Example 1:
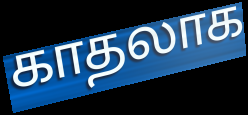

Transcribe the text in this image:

காதலாக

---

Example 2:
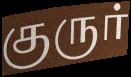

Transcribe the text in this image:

குருர்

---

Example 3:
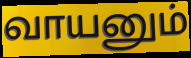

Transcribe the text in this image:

வாயனும்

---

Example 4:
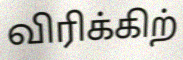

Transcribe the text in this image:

விரிக்கிற்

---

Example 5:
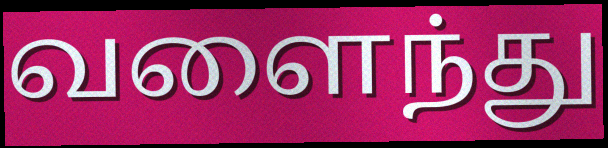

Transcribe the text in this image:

வளைந்து